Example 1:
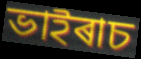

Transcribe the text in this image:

ভাইৰাচ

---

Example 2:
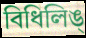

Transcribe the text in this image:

বিধিলিঙ্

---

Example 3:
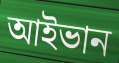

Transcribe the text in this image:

আইভান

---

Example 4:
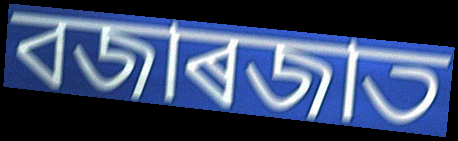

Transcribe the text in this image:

বজাৰজাত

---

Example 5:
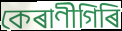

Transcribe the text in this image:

কেৰাণীগিৰি